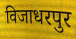
विजाधरपुर